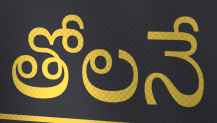
తోలనే